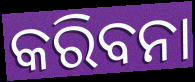
କରିବନା